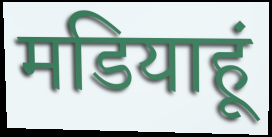
मडियाहूं